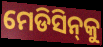
ମେଡିସିନ୍‌କୁ